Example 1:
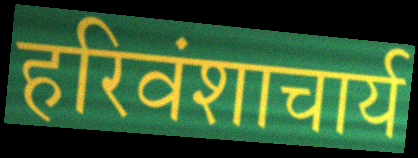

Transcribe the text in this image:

हरिवंशाचार्य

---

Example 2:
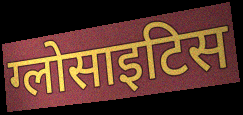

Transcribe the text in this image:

ग्लोसाइटिस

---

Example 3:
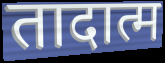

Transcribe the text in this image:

तादात्म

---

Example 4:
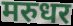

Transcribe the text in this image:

मरुधर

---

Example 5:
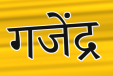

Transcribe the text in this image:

गजेंद्र